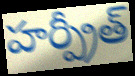
హర్ప్రీత్